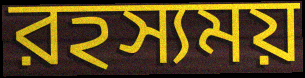
রহস্যময়